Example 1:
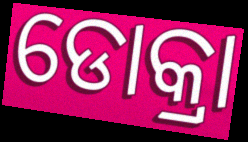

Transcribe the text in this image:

ଡୋକ୍ରା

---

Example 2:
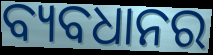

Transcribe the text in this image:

ବ୍ୟବଧାନର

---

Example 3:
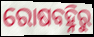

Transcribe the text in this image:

ରୋଷବହ୍ନିରୁ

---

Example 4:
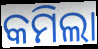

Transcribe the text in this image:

କମିଲା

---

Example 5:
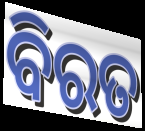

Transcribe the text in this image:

ବିରତ